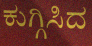
ಕುಗ್ಗಿಸಿದ